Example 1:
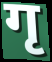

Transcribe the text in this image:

गृ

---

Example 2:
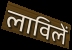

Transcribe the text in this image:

लाविलें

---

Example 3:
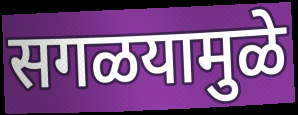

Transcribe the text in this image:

सगळयामुळे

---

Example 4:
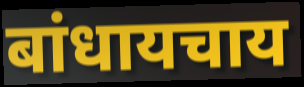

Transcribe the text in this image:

बांधायचाय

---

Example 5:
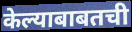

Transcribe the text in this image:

केल्याबाबतची